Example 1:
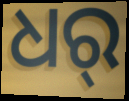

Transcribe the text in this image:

ଧର୍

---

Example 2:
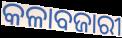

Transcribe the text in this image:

କଳାବଜାରୀ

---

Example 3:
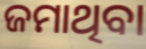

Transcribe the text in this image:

ଜମାଥିବା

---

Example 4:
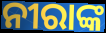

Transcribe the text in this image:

ନୀରାଙ୍କ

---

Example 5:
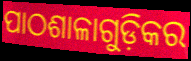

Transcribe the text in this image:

ପାଠଶାଳାଗୁଡ଼ିକର